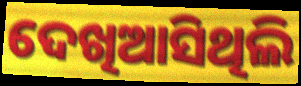
ଦେଖିଆସିଥିଲି